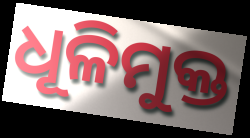
ଧୂଳିମୁକ୍ତ